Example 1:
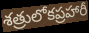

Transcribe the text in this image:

శత్రులోకప్రహారీ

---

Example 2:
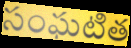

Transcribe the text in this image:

సంఘటిత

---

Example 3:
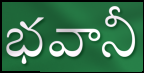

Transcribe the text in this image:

భవానీ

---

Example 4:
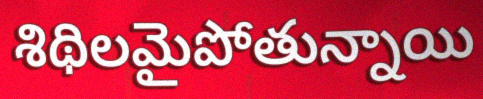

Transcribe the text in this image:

శిథిలమైపోతున్నాయి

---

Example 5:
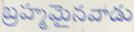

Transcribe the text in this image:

బ్రహ్మమైనవాడు